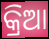
କ୍ରିଆ